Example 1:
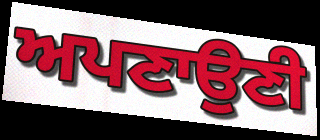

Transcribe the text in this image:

ਅਪਣਾਉਣੀ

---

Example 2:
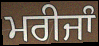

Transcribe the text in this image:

ਮਰੀਜਾੰ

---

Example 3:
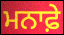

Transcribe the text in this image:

ਮਨਾਫ਼ੇ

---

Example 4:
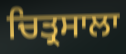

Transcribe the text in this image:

ਚਿਤ੍ਰਸਾਲਾ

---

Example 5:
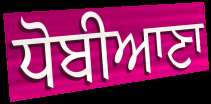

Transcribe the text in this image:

ਧੋਬੀਆਣਾ